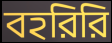
বহরিরি